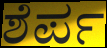
ಶೆರ್ಪ